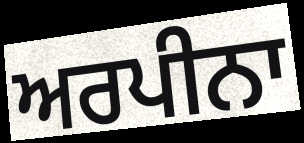
ਅਰਪੀਨਾ